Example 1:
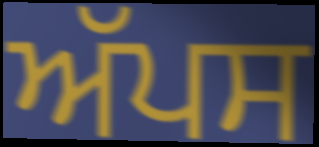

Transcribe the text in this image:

ਅੱਪਸ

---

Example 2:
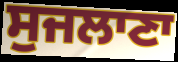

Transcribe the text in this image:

ਸੁਜਲਾਣਾ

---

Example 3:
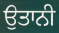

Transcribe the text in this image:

ਉਤਾਨੀ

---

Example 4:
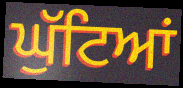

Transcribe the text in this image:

ਘੁੱਟਿਆਂ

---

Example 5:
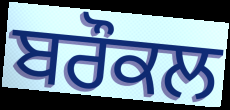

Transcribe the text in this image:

ਬਰੌਕਲ